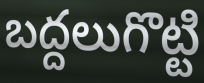
బద్దలుగొట్టి